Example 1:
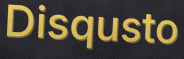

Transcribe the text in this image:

Disqusto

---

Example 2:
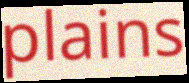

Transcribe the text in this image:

plains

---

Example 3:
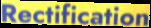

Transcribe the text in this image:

Rectification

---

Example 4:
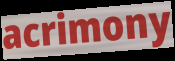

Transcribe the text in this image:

acrimony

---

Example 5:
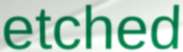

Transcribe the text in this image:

etched